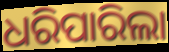
ଧରିପାରିଲା